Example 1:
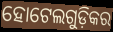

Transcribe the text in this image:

ହୋଟେଲଗୁଡ଼ିକର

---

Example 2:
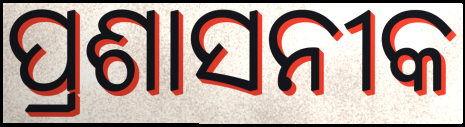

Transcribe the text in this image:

ପ୍ରଶାସନୀକ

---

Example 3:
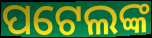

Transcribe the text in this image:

ପଟେଲଙ୍କ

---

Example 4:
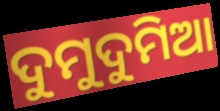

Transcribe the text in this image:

ଦୁମୁଦୁମିଆ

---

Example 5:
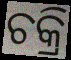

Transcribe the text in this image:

ଚକ୍ରି